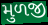
મુળજી